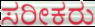
ಸರೀಕರು